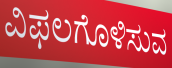
ವಿಫಲಗೊಳಿಸುವ